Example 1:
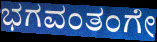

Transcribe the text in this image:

ಭಗವಂತಂಗೇ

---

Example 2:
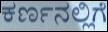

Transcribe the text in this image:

ಕರ್ಣನಲ್ಲಿಗೆ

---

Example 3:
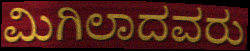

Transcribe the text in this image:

ಮಿಗಿಲಾದವರು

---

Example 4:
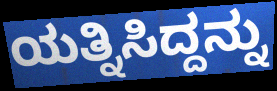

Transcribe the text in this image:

ಯತ್ನಿಸಿದ್ದನ್ನು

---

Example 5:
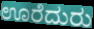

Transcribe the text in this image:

ಊರೆದುರು